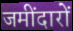
जमींदारों